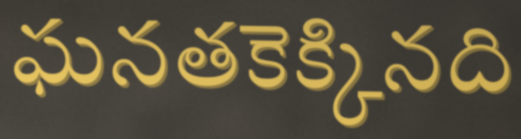
ఘనతకెక్కినది